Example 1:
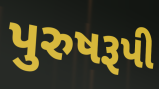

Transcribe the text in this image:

પુરુષરૂપી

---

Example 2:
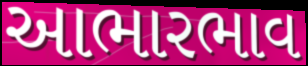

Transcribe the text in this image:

આભારભાવ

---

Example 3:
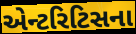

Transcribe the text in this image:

એન્ટરિટિસના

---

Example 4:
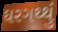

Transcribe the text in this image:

ઘરગથ્થું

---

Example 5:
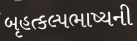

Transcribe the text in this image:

બૃહત્કલ્પભાષ્યની